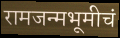
रामजन्मभूमीचं